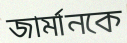
জার্মানকে